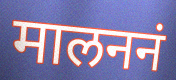
मालननं